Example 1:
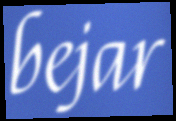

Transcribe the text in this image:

bejar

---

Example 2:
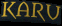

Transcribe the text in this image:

KARU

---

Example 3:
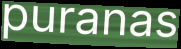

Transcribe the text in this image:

puranas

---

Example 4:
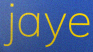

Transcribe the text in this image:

jaye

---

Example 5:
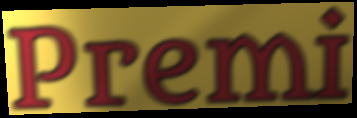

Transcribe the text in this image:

Premi